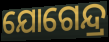
ଯୋଗେନ୍ଦ୍ର